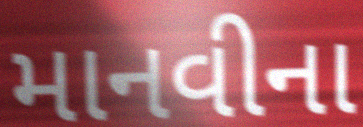
માનવીના